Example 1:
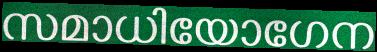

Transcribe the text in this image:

സമാധിയോഗേന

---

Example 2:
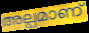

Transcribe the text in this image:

അല്പമാണ്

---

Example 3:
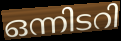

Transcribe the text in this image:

ഒന്നിടറി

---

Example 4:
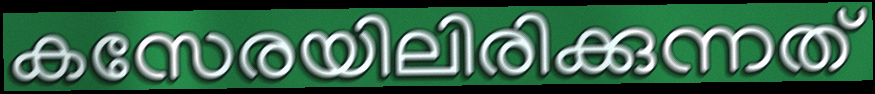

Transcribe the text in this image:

കസേരയിലിരിക്കുന്നത്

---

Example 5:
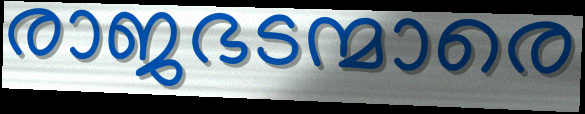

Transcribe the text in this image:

രാജഭടന്മാരെ